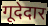
गूदेदार